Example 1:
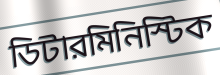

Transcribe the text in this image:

ডিটারমিনিস্টিক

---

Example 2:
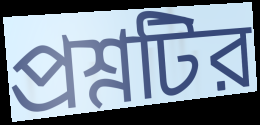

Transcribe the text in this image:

প্রশ্নটির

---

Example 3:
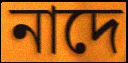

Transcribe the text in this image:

নাদে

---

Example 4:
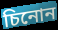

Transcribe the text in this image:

চিনোন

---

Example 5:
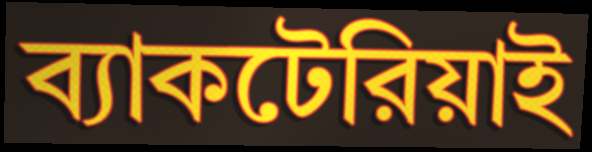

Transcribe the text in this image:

ব্যাকটেরিয়াই